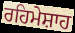
ਰਹਿਮੇਸ਼ਾਹ